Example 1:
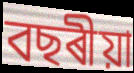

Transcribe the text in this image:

বছৰীয়া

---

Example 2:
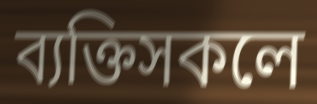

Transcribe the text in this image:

ব্যক্তিসকলে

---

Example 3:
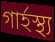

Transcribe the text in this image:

গাৰ্হস্থ্য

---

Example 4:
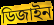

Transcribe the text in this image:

ডিজাইন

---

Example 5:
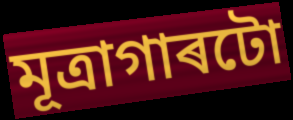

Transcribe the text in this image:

মূত্ৰাগাৰটো